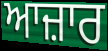
ਆਜ਼ਾਰ